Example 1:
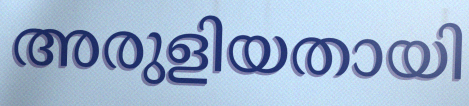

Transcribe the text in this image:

അരുളിയതായി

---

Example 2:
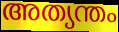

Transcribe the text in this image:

അത്യന്തം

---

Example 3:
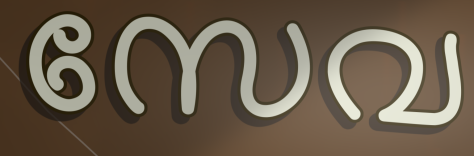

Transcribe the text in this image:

സേവ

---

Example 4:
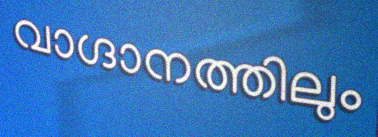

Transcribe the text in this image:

വാഗ്ദാനത്തിലും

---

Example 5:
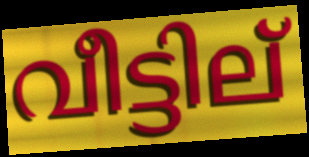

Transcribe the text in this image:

വീട്ടില്